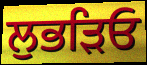
ਲੁਭੜਿਓ